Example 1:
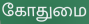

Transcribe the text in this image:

கோதுமை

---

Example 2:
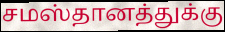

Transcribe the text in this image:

சமஸ்தானத்துக்கு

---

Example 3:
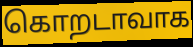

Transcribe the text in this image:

கொறடாவாக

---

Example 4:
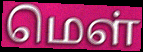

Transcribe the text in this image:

மெள்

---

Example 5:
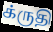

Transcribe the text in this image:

க்ருதி